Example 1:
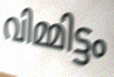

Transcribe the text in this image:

വിമ്മിട്ടം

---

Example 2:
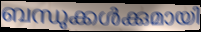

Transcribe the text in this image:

ബന്ധുക്കൾക്കുമായി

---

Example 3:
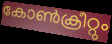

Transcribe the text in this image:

കോൺക്രീറ്റും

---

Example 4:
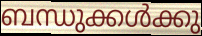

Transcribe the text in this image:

ബന്ധുക്കൾക്കു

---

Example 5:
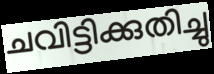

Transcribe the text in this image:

ചവിട്ടിക്കുതിച്ചു